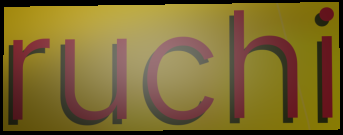
ruchi